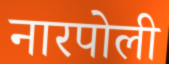
नारपोली